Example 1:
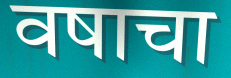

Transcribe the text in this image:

वषाचा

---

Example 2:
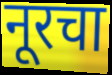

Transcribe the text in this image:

नूरचा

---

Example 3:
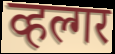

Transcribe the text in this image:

व्हल्गर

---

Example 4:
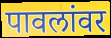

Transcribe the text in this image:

पावलांवर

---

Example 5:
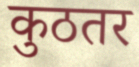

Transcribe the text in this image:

कुठतर